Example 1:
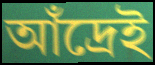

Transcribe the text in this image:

আঁদ্রেই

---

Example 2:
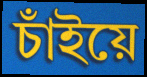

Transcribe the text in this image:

চাঁইয়ে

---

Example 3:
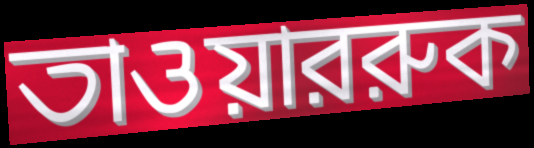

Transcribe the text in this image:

তাওয়াররুক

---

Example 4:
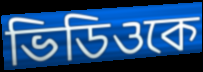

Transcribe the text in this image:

ভিডিওকে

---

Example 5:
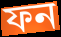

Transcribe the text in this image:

ফন